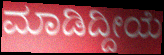
ಮಾಡಿದ್ದೀಯೆ